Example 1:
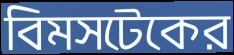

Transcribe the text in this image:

বিমসটেকের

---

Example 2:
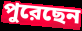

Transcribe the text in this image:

পুরেছেন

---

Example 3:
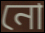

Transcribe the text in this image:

নো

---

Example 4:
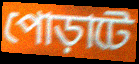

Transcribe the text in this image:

পোড়াটে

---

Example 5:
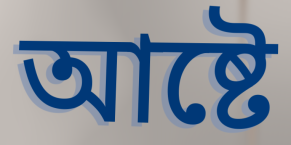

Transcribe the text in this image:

আষ্টে